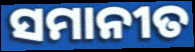
ସମାନୀତ